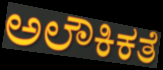
ಅಲೌಕಿಕತೆ